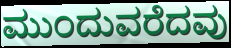
ಮುಂದುವರೆದವು